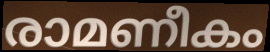
രാമണീകം